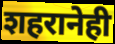
शहरानेही